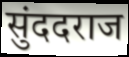
सुंददराज